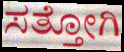
ಸತ್ತೋಗಿ